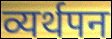
व्यर्थपन